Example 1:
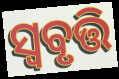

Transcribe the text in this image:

ସ୍ୱବୃତ୍ତି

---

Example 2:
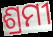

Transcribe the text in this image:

ଶ୍ରମୀ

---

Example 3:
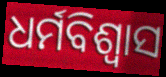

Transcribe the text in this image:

ଧର୍ମବିଶ୍ୱାସ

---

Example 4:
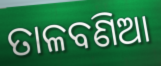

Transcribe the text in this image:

ତାଳବଣିଆ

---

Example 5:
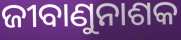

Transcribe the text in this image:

ଜୀବାଣୁନାଶକ